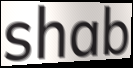
shab